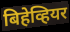
बिहेव्हियर